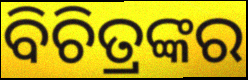
ବିଚିତ୍ରଙ୍କର